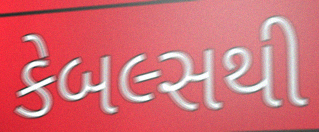
કેબલ્સથી